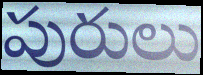
పురులు